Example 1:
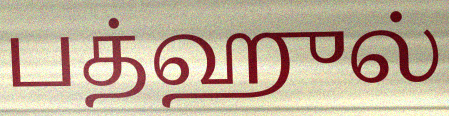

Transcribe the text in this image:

பத்ஹுல்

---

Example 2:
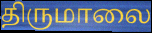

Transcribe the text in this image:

திருமாலை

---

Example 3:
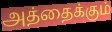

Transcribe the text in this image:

அத்தைக்கும்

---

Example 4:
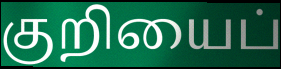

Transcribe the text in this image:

குறியைப்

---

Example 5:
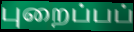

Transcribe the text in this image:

புறைப்பப்